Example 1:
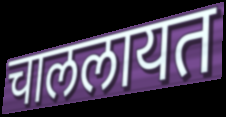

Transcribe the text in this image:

चाललायत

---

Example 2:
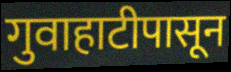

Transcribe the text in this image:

गुवाहाटीपासून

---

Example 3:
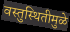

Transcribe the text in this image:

वस्तुस्थितीमुळे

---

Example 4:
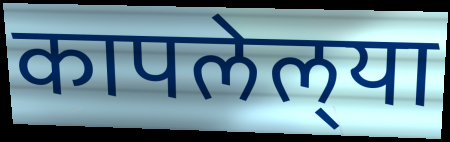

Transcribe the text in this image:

कापलेल्या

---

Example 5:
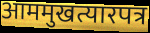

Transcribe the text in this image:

आममुखत्यारपत्र